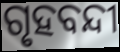
ଗୃହବନ୍ଦୀ